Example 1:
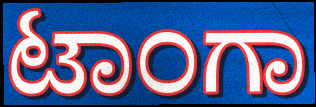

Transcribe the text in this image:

ಟಾಂಗಾ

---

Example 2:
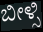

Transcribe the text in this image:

ಬೀಳ್ಸಿ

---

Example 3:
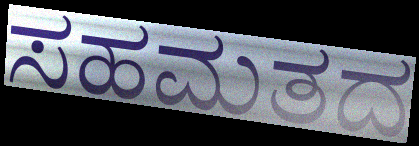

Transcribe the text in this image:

ಸಹಮತದ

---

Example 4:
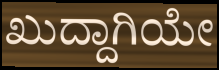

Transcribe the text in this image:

ಖುದ್ದಾಗಿಯೇ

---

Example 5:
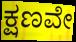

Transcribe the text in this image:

ಕ್ಷಣವೇ